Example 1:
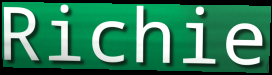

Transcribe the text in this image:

Richie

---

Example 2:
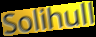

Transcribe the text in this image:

Solihull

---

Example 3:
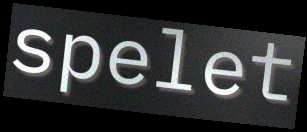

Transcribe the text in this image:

spelet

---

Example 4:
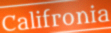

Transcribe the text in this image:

Califronia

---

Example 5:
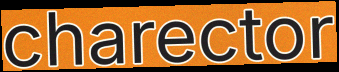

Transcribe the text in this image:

charector